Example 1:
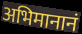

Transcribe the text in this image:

अभिमानानं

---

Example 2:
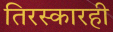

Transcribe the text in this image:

तिरस्कारही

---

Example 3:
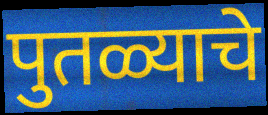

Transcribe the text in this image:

पुतळ्याचे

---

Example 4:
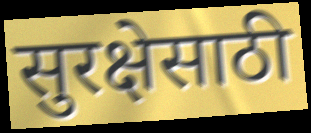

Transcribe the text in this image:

सुरक्षेसाठी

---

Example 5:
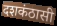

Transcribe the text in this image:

दशकंठासी